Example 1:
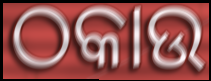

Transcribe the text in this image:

ଠକାଉ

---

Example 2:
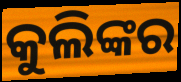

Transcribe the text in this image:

କୁଲିଙ୍କର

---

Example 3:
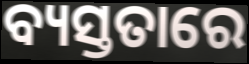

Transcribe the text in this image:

ବ୍ୟସ୍ତତାରେ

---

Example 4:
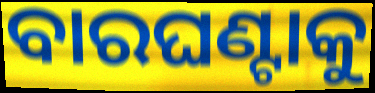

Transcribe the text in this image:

ବାରଘଣ୍ଟାକୁ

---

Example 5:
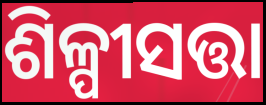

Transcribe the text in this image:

ଶିଳ୍ପୀସତ୍ତା